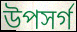
উপসৰ্গ